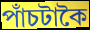
পাঁচটাকৈ